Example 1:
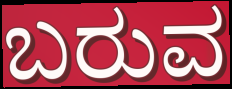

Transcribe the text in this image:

ಬರುವ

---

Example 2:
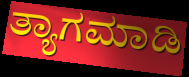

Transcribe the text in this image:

ತ್ಯಾಗಮಾಡಿ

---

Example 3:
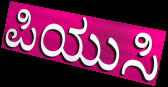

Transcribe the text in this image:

ಪಿಯುಸಿ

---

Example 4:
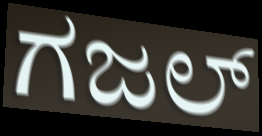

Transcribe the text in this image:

ಗಜಲ್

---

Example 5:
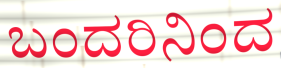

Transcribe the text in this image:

ಬಂದರಿನಿಂದ